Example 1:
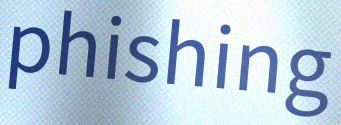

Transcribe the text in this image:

phishing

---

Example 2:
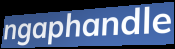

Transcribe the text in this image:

ngaphandle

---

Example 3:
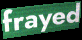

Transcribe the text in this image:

frayed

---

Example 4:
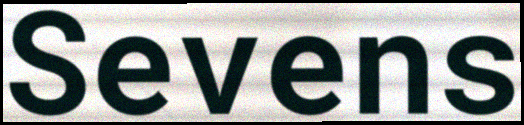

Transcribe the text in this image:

Sevens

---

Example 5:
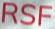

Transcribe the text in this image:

RSF